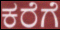
ಕರೆಗೆ